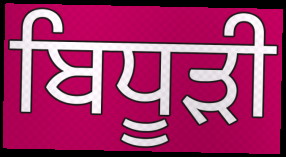
ਬਿਧੂੜੀ